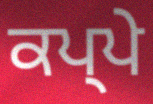
ਕਪ੍ਪੇ